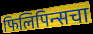
फिलिपिन्सचा